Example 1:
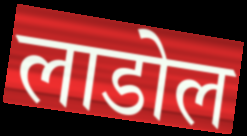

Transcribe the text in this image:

लाडोल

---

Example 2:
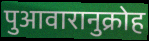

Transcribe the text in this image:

पुआवारानुक्रोह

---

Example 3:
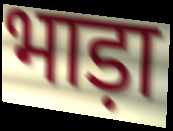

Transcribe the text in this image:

भाड़ा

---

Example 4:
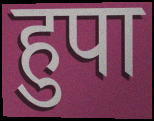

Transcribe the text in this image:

हुपा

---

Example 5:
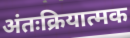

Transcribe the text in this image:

अंतःक्रियात्मक